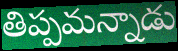
తిప్పమన్నాడు